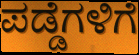
ಪಡ್ಡೆಗಳಿಗೆ